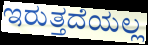
ಇರುತ್ತದೆಯಲ್ಲ